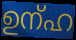
ഉന്ഹ